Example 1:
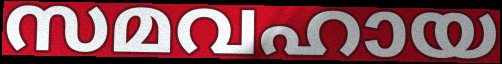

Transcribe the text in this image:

സമവഹായ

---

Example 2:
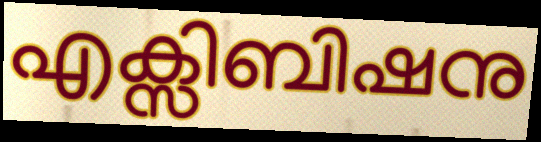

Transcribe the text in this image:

എക്സിബിഷനു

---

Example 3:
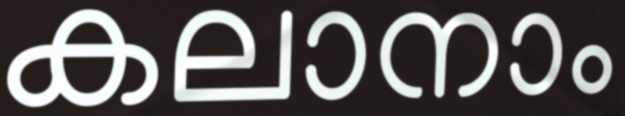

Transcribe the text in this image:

കലാനാം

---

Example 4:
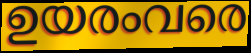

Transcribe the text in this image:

ഉയരംവരെ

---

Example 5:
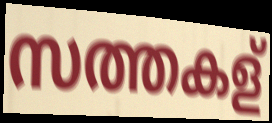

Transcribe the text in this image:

സത്തകള്